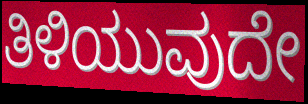
ತಿಳಿಯುವುದೇ